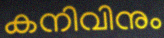
കനിവിനും